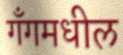
गँगमधील